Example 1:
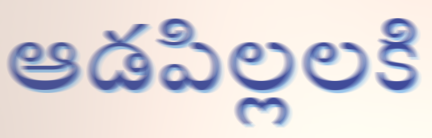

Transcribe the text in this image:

ఆడపిల్లలకి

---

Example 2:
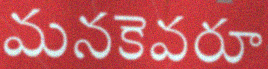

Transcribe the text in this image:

మనకెవరూ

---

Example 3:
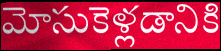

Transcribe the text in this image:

మోసుకెళ్లడానికి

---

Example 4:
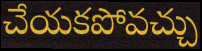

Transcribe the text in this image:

చేయకపోవచ్చు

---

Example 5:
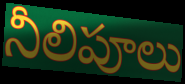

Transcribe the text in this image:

నీలిపూలు